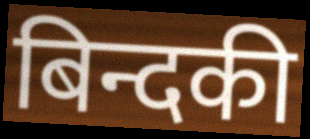
बिन्दकी